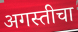
अगस्तीचा